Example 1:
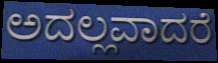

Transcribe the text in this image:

ಅದಲ್ಲವಾದರೆ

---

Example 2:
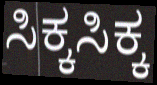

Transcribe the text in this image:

ಸಿಕ್ಕಸಿಕ್ಕ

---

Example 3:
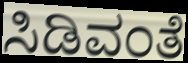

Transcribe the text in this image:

ಸಿಡಿವಂತೆ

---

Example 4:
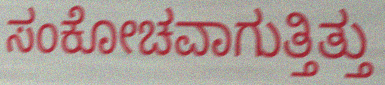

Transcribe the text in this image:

ಸಂಕೋಚವಾಗುತ್ತಿತ್ತು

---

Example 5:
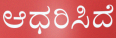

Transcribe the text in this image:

ಆಧರಿಸಿದೆ